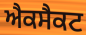
ਐਕਸੈਕਟ